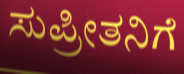
ಸುಪ್ರೀತನಿಗೆ